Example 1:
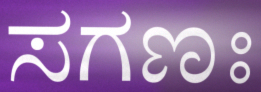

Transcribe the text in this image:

ಸಗಣಃ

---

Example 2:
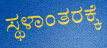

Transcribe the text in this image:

ಸ್ಥಳಾಂತರಕ್ಕೆ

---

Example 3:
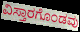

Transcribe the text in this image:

ವಿಸ್ತಾರಗೊಂಡವು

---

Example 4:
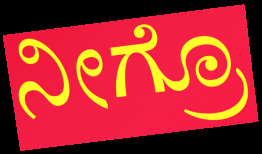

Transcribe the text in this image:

ನೀಗ್ರೊ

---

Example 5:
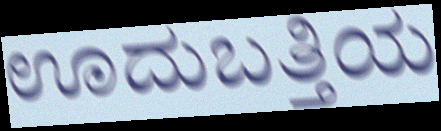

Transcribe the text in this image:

ಊದುಬತ್ತಿಯ